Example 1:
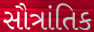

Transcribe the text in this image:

સૌત્રાંતિક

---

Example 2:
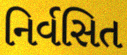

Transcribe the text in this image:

નિર્વસિત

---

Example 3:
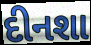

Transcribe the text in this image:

દીનશા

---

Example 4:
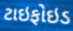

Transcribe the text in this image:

ટાઇફોઇડ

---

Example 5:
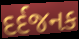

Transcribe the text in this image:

દર્દજનક